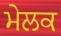
ਮੇਲਕ